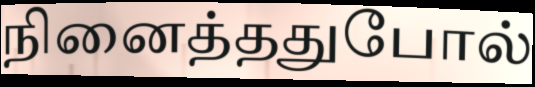
நினைத்ததுபோல்